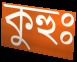
কুহুঃ